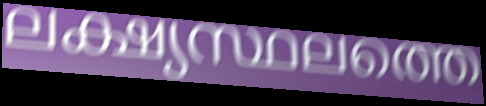
ലക്ഷ്യസ്ഥലത്തെ